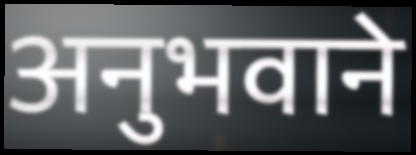
अनुभवाने